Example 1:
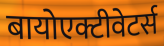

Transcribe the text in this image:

बायोएक्टीवेटर्स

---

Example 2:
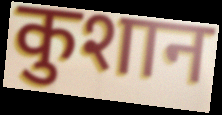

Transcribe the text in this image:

कुशान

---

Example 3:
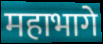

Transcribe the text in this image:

महाभागे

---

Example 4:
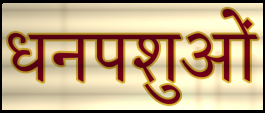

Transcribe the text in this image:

धनपशुओं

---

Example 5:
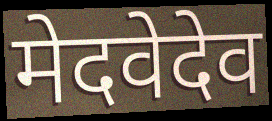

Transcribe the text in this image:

मेदवेदेव